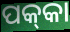
ପକ୍‌କା